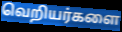
வெறியர்களை